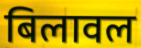
बिलावल